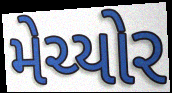
મેચ્યોર